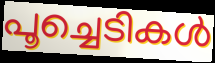
പൂച്ചെടികൾ